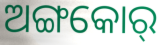
ଅଙ୍ଗକୋର୍